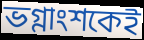
ভগ্নাংশকেই